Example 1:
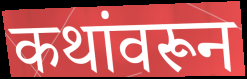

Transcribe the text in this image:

कथांवरून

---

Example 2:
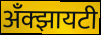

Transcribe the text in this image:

अँक्झायटी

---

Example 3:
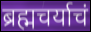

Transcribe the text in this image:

ब्रह्मचर्याचं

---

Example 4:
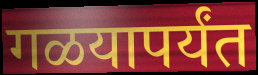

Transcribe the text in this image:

गळयापर्यंत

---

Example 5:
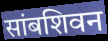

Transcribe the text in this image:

सांबशिवन